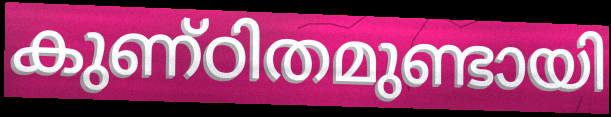
കുണ്ഠിതമുണ്ടായി